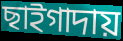
ছাইগাদায়